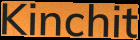
Kinchit